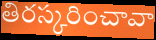
తిరస్కరించావా